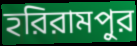
হরিরামপুর